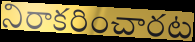
నిరాకరించారట